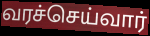
வரச்செய்வார்